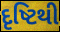
દૃષ્ટિથી